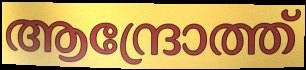
ആന്ദ്രോത്ത്